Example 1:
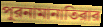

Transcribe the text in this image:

পুরনামানাতিরার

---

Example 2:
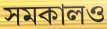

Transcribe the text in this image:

সমকালও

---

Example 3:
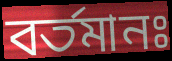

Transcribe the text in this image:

বর্তমানঃ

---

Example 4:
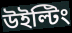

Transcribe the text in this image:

উইল্টিং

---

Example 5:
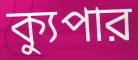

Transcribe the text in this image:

ক্যুপার